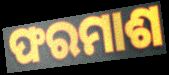
ଫରମାଶ